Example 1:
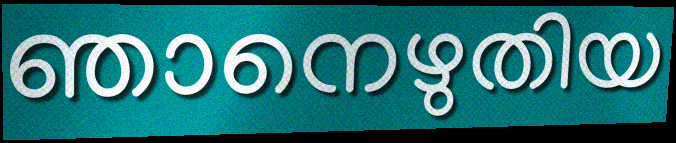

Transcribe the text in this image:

ഞാനെഴുതിയ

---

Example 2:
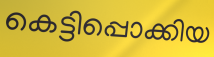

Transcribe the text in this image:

കെട്ടിപ്പൊക്കിയ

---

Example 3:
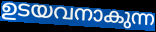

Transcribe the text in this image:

ഉടയവനാകുന്ന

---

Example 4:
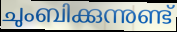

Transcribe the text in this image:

ചുംബിക്കുന്നുണ്ട്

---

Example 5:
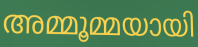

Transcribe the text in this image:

അമ്മൂമ്മയായി